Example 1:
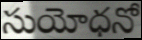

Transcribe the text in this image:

సుయోధనో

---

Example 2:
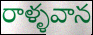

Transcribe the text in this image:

రాళ్ళవాన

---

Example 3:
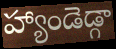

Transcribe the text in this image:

హ్యాండెడ్గా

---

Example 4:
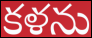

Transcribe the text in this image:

కళను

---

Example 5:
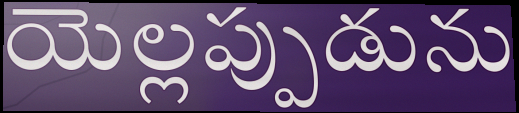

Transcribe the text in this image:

యెల్లప్పుడును